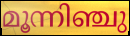
മൂന്നിഞ്ചു